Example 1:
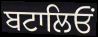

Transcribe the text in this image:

ਬਟਾਲਿਓਂ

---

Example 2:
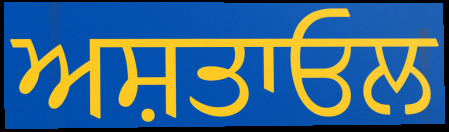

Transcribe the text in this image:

ਅਸ਼ਤਾਓਲ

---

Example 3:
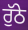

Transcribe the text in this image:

ਰੁੱਠੇ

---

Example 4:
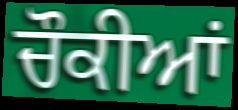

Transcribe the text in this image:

ਚੌਕੀਆਂ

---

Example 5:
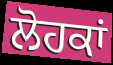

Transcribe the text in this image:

ਲੋਹਕਾਂ